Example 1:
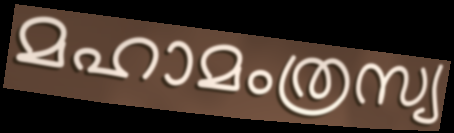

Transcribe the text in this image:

മഹാമംത്രസ്യ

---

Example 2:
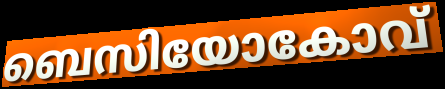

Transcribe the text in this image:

ബെസിയോകോവ്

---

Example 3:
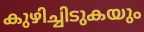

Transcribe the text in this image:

കുഴിച്ചിടുകയും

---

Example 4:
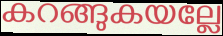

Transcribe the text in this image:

കറങ്ങുകയല്ലേ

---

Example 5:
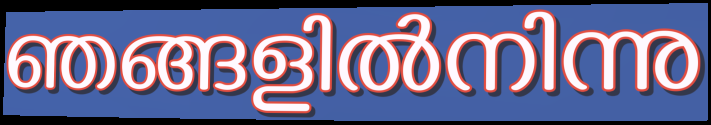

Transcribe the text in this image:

ഞങ്ങളിൽനിന്നു